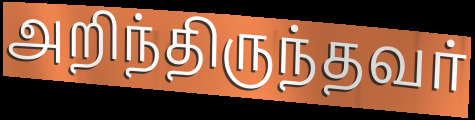
அறிந்திருந்தவர்